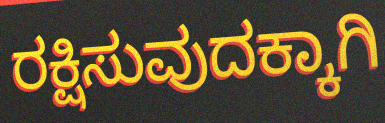
ರಕ್ಷಿಸುವುದಕ್ಕಾಗಿ